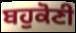
ਬਹੁਕੋਣੀ